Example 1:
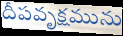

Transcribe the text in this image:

దీపవృక్షమును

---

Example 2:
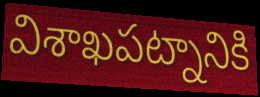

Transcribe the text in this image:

విశాఖపట్నానికి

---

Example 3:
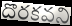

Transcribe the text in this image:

దొరకవని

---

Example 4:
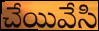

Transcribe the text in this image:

చేయివేసి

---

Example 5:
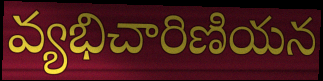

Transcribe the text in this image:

వ్యభిచారిణియన